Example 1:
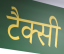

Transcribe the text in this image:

टैक्सी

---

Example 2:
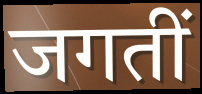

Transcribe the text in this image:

जगतीं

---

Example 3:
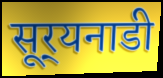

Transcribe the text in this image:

सूर्यनाडी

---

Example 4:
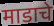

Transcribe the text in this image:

माडाचे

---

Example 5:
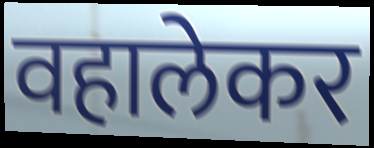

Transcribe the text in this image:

वहालेकर